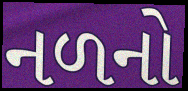
નળનો